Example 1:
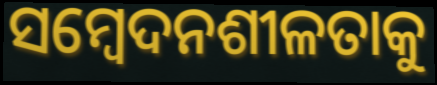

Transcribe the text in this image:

ସମ୍ବେଦନଶୀଳତାକୁ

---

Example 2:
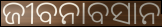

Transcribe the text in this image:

ଜୀବନାବସାନ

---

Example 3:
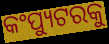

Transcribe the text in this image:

କଂପ୍ୟୁଟରକୁ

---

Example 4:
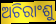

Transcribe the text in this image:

ଅଚିରାଂଶୁ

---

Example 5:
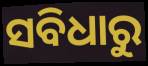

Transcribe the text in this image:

ସବିଧାରୁ